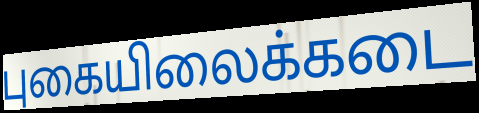
புகையிலைக்கடை